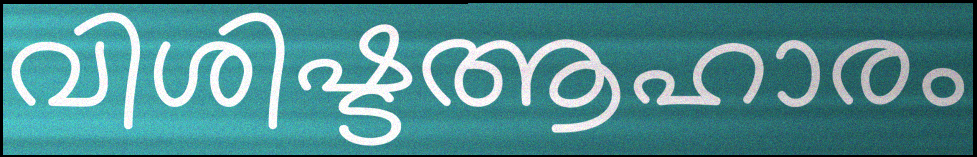
വിശിഷ്ടആഹാരം